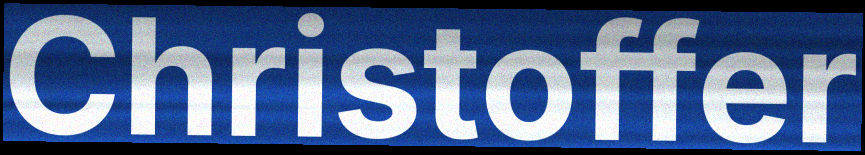
Christoffer